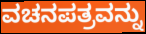
ವಚನಪತ್ರವನ್ನು